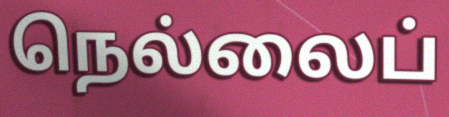
நெல்லைப்